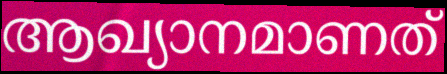
ആഖ്യാനമാണത്